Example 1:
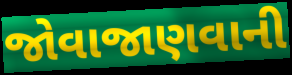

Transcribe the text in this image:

જોવાજાણવાની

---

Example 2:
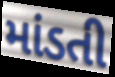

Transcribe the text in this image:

માંડતી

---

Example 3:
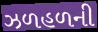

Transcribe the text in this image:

ઝળહળની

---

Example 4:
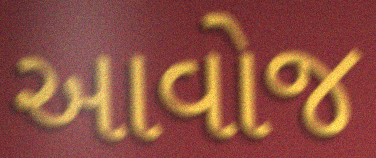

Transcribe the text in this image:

આવોજ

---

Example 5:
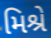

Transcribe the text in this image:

મિશ્રે